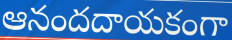
ఆనందదాయకంగా